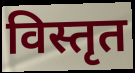
विस्तृत